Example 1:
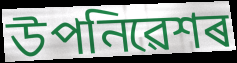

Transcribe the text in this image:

উপনিৱেশৰ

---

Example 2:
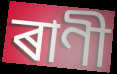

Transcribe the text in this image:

ৰাণী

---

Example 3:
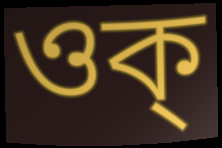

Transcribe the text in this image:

ওক্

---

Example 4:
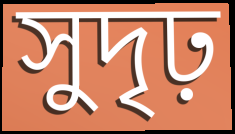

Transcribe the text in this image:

সুদৃঢ়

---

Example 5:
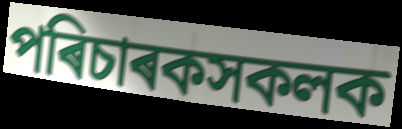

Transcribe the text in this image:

পৰিচাৰকসকলক